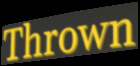
Thrown